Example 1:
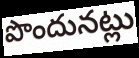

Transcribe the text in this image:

పొందునట్లు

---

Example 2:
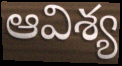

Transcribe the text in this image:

ఆవిశ్య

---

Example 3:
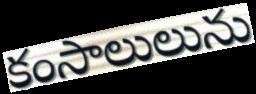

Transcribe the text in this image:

కంసాలులును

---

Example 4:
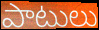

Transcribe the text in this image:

పాటులు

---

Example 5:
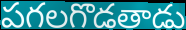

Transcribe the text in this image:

పగలగొడతాడు